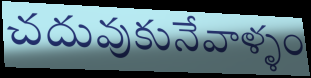
చదువుకునేవాళ్ళం